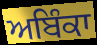
ਅਬਿੰਕਾ